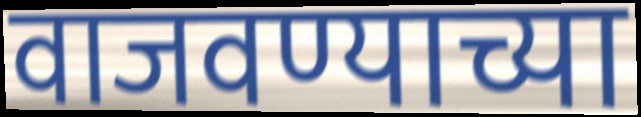
वाजवण्याच्या